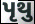
પૃથુ